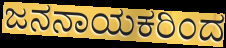
ಜನನಾಯಕರಿಂದ